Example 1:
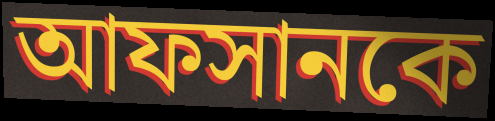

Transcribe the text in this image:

আফসানকে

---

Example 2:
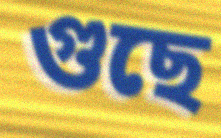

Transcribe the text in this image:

গুছে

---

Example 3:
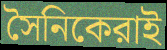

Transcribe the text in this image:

সৈনিকেরাই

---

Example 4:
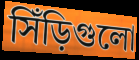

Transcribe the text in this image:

সিঁড়িগুলো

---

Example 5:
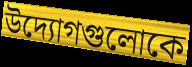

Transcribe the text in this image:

উদ্যোগগুলোকে